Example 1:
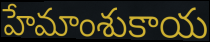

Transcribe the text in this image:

హేమాంశుకాయ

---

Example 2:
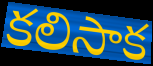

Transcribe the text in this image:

కలిసాక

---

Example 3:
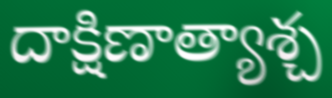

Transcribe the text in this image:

దాక్షిణాత్యాశ్చ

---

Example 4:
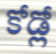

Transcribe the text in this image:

కోడ్లో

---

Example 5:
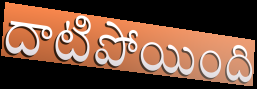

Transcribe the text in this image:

దాటిపోయింది